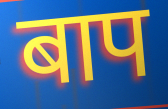
बाप